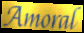
Amoral